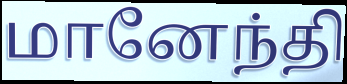
மானேந்தி